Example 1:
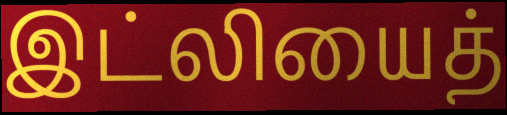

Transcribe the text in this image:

இட்லியைத்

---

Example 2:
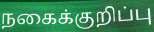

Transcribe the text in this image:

நகைக்குறிப்பு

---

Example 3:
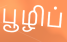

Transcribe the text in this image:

பூழிப்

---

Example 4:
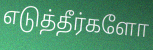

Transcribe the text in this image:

எடுத்தீர்களோ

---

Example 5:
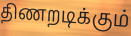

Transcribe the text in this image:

திணறடிக்கும்